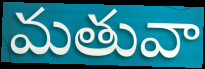
మతువా